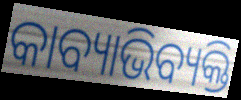
କାବ୍ୟାଭିବ୍ୟକ୍ତି